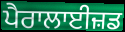
ਪੈਰਾਲਾਈਜ਼ਡ